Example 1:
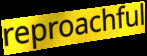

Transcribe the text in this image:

reproachful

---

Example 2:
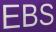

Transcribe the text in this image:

EBS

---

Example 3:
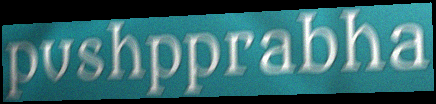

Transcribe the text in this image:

pushpprabha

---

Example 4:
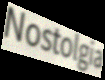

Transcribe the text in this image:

Nostolgia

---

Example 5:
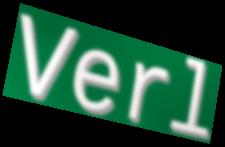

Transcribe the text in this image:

Verl